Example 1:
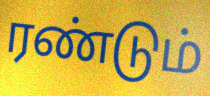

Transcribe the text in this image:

ரண்டும்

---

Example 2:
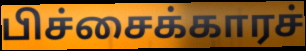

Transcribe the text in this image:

பிச்சைக்காரச்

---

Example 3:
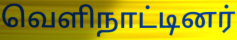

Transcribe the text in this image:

வெளிநாட்டினர்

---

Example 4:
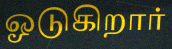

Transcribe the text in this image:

ஓடுகிறார்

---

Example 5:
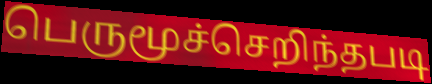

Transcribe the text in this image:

பெருமூச்செறிந்தபடி